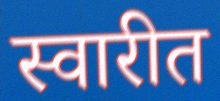
स्वारीत